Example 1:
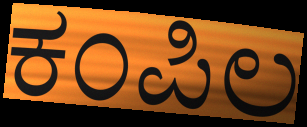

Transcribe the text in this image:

ಕಂಪಿಲ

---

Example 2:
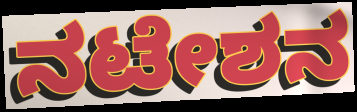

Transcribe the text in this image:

ನಟೇಶನ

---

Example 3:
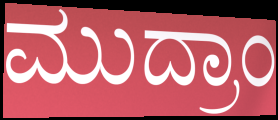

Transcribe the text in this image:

ಮುದ್ರಾಂ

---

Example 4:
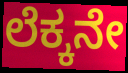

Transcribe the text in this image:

ಲೆಕ್ಕನೇ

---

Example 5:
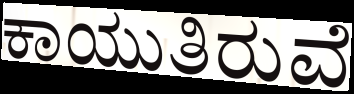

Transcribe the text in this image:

ಕಾಯುತಿರುವೆ